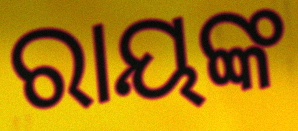
ରାୟଙ୍କ